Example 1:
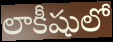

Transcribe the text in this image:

లాకీషులో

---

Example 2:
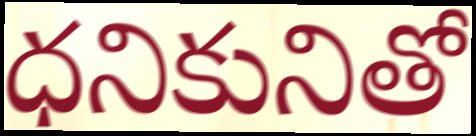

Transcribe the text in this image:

ధనికునితో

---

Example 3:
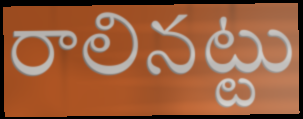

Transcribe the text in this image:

రాలినట్టు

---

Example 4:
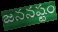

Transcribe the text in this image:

జననష్టం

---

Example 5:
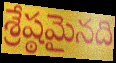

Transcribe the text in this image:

శ్రేష్ఠమైనది